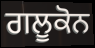
ਗਲੂਕੋਨ